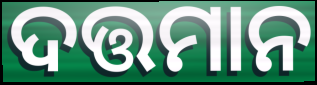
ଦତ୍ତମାନ